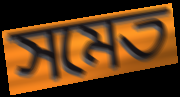
সমেত